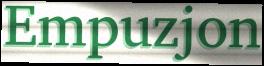
Empuzjon